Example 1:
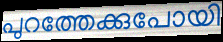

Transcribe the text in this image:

പുറത്തേക്കുപോയി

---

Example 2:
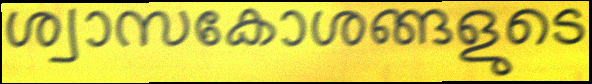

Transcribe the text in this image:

ശ്വാസകോശങ്ങളുടെ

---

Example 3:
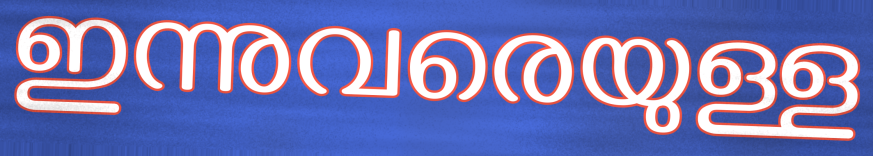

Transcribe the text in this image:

ഇന്നുവരെയുള്ള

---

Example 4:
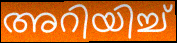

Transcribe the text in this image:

അറിയിച്ച്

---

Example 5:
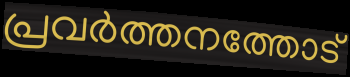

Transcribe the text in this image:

പ്രവർത്തനത്തോട്